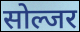
सोल्जर